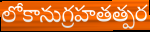
లోకానుగ్రహతత్పర